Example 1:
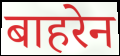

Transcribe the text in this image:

बाहरेन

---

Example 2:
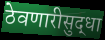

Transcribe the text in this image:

ठेवणारीसुद्धा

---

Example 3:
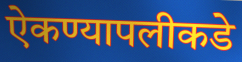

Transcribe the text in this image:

ऐकण्यापलीकडे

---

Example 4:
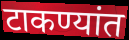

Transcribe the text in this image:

टाकण्यांत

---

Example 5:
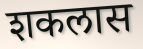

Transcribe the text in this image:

शकलास